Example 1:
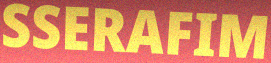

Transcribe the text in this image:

SSERAFIM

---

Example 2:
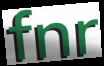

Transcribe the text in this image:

fnr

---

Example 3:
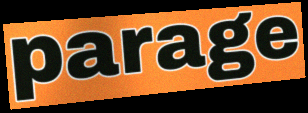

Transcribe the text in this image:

parage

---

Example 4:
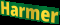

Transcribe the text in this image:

Harmer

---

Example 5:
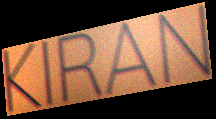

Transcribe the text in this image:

KIRAN